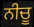
ਨੀਚੂ